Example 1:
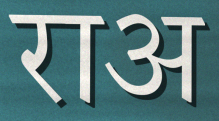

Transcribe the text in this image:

राअ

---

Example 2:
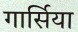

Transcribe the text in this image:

गार्सिया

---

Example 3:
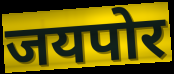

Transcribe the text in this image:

जयपोर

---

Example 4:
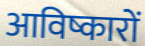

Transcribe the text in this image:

आविष्‍कारों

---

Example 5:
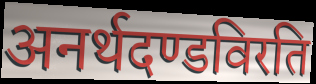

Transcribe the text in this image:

अनर्थदण्डविरति